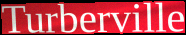
Turberville